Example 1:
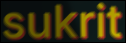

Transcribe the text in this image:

sukrit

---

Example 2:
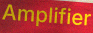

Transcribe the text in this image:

Amplifier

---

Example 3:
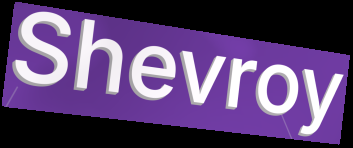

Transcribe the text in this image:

Shevroy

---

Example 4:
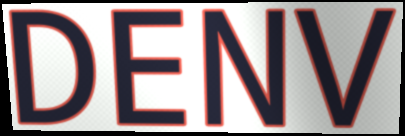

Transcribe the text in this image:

DENV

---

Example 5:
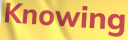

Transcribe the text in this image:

Knowing